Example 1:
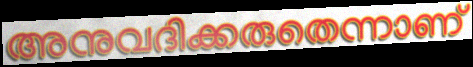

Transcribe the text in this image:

അനുവദിക്കരുതെന്നാണ്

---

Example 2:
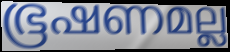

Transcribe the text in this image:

ഭൂഷണമല്ല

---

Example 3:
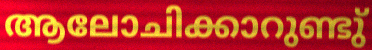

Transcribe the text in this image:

ആലോചിക്കാറുണ്ടു്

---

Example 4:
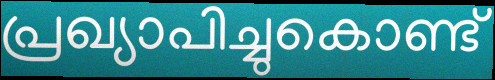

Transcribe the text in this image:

പ്രഖ്യാപിച്ചുകൊണ്ട്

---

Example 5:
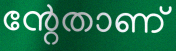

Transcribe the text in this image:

ന്റേതാണ്